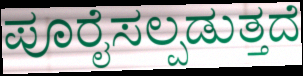
ಪೂರೈಸಲ್ಪಡುತ್ತದೆ